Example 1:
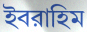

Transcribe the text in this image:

ইবরাহিম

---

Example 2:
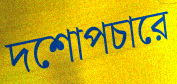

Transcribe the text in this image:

দশোপচারে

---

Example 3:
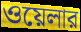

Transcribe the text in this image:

ওয়েলার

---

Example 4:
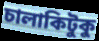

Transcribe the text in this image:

চালাকিটুকু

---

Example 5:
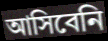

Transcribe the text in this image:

আসিবেনি